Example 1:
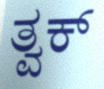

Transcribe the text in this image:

ತ್ವಕ್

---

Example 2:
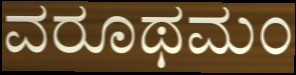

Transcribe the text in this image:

ವರೂಥಮಂ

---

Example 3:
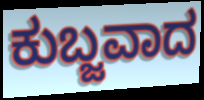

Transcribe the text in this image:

ಕುಬ್ಜವಾದ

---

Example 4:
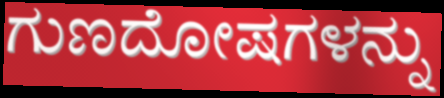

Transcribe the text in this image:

ಗುಣದೋಷಗಳನ್ನು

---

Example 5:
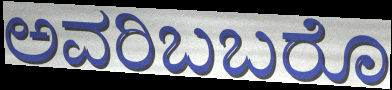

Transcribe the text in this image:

ಅವರಿಬಬರೊ